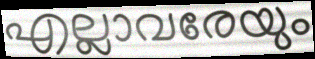
എല്ലാവരേയും